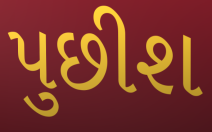
પુછીશ